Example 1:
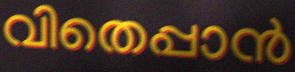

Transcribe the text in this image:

വിതെപ്പാൻ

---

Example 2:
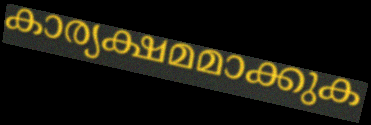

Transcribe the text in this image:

കാര്യക്ഷമമാക്കുക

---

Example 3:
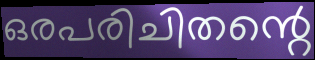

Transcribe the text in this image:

ഒരപരിചിതന്റെ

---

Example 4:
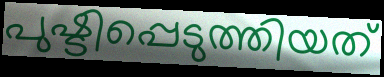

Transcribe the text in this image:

പുഷ്ടിപ്പെടുത്തിയത്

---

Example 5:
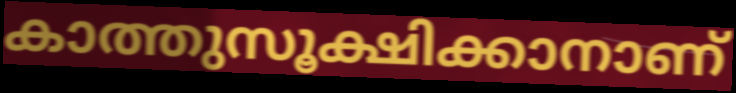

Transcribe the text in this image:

കാത്തുസൂക്ഷിക്കാനാണ്